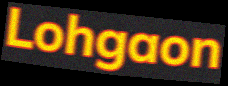
Lohgaon